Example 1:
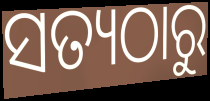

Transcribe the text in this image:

ସତ୍ୟଠାରୁ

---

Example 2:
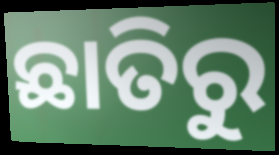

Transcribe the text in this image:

ଛାତିରୁ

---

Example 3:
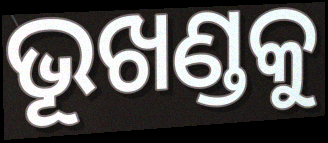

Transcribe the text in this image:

ଭୂଖଣ୍ଡକୁ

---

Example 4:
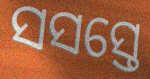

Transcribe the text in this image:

ସସସ୍ତେ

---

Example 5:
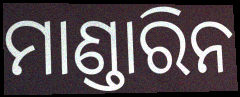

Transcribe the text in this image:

ମାଣ୍ଡାରିନ